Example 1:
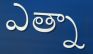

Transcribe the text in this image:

ఎత్నా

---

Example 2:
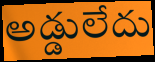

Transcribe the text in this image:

అడ్డులేదు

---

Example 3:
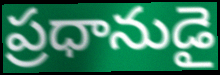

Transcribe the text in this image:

ప్రధానుడై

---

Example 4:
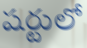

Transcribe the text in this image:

షర్టులో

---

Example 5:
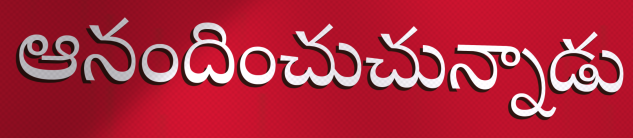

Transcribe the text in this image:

ఆనందించుచున్నాడు